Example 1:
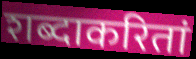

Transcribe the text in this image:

शब्दाकरितां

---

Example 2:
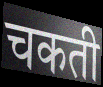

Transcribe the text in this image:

चकती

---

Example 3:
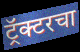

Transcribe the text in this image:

ट्रॅक्टरचा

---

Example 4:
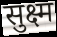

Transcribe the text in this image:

सुक्ष्म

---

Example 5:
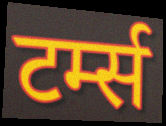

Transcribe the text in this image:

टर्म्स